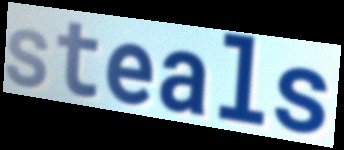
steals